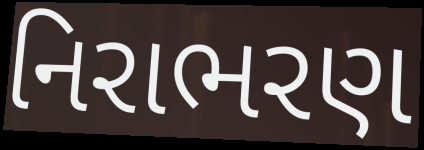
નિરાભરણ